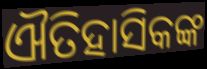
ଐତିହାସିକଙ୍କ